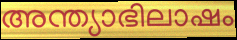
അന്ത്യാഭിലാഷം